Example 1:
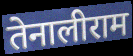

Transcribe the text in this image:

तेनालीराम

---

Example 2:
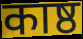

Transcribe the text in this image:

काष्ठ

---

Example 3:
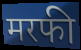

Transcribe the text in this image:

मरफी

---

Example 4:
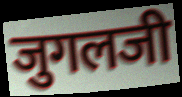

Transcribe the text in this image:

जुगलजी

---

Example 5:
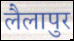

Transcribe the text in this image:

लैलापुर